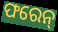
ଫରେନ୍